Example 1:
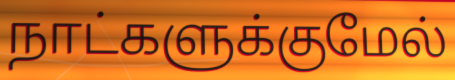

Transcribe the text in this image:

நாட்களுக்குமேல்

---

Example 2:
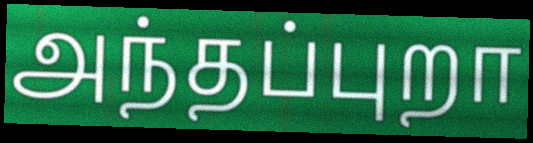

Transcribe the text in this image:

அந்தப்புறா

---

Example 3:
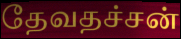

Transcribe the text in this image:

தேவதச்சன்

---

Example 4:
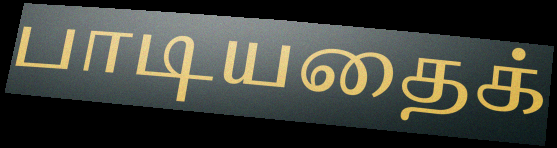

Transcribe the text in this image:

பாடியதைக்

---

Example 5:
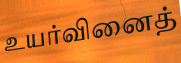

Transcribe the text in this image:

உயர்வினைத்